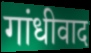
गांधीवाद